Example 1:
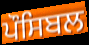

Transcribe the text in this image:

ਪੌਸਿਬਲ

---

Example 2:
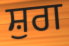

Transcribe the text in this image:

ਸ਼ੁਗ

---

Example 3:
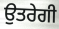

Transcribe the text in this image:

ਉਤਰੇਗੀ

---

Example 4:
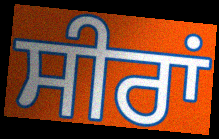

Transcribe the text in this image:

ਸੀਰਾਂ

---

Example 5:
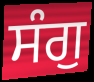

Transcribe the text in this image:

ਸੰਗੁ